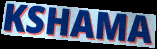
KSHAMA